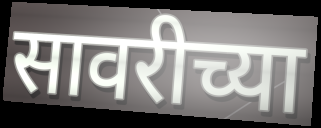
सावरीच्या